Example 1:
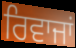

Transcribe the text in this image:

ਰਿਵਾਜਾਂ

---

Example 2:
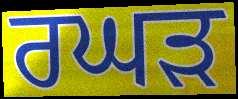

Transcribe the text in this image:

ਰਘੜ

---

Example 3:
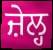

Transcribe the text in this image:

ਜ਼ੇਲ੍ਹ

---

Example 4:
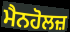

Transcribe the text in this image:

ਮੈਨਹੋਲਜ਼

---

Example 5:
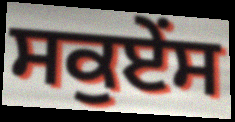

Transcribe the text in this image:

ਸਕੁਏਂਸ